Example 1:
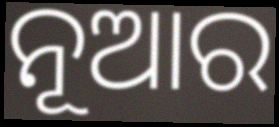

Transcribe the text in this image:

ନୂଆର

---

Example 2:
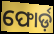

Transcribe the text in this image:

ଫୋର୍ଡ଼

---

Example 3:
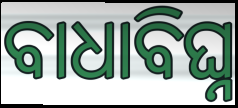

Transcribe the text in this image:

ବାଧାବିଘ୍ନ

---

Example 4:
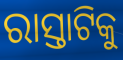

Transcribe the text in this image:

ରାସ୍ତାଟିକୁ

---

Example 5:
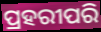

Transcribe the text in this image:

ପ୍ରହରୀପରି